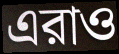
এরাও